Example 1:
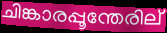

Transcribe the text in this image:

ചിങ്കാരപ്പൂന്തേരില്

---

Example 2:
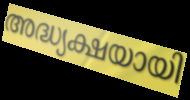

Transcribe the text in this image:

അദ്ധ്യക്ഷയായി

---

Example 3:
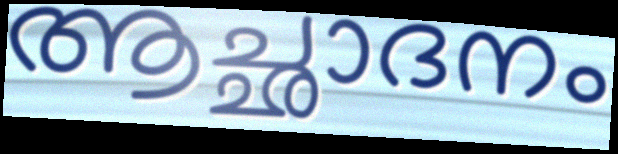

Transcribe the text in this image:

ആച്ഛാദനം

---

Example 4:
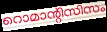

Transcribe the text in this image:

റൊമാന്റിസിസം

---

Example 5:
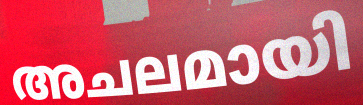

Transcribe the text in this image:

അചലമായി